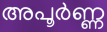
അപൂർണ്ണ